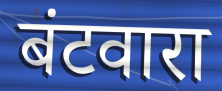
बंटवारा